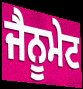
ਜੈਨੂਮੇਟ